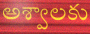
అశ్వాలకు